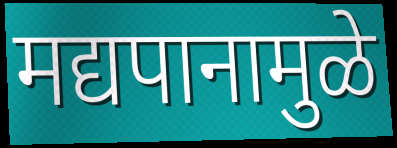
मद्यपानामुळे